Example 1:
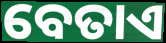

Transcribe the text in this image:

ବେତାଏ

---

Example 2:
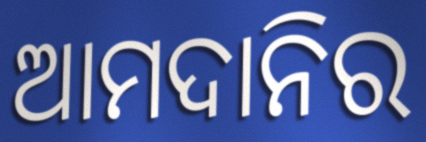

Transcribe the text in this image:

ଆମଦାନିର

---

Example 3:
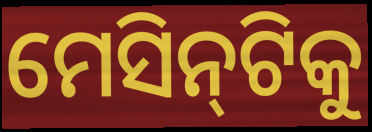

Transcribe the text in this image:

ମେସିନ୍‍ଟିକୁ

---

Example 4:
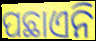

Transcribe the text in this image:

ପଛାଏନି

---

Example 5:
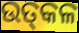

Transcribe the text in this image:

ଉତ୍‌କଳ